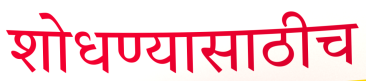
शोधण्यासाठीच